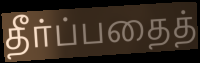
தீர்ப்பதைத்